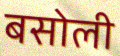
बसोली